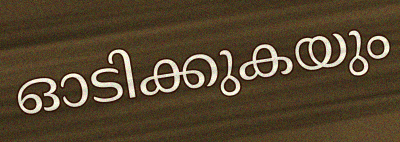
ഓടിക്കുകയും